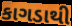
કાગડાથી